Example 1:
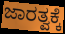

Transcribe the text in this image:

ಜಾರತ್ವಕ್ಕೆ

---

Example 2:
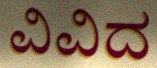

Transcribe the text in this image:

ವಿವಿದ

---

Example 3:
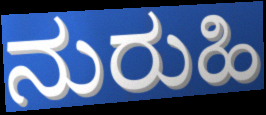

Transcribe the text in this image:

ನುರುಹಿ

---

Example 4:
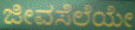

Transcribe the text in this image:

ಜೀವಸೆಲೆಯೇ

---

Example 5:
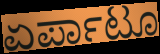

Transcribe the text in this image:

ಏರ್ಪಾಟೂ